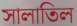
সালাতিল